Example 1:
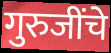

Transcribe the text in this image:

गुरुजींचे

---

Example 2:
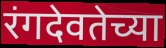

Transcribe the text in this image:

रंगदेवतेच्या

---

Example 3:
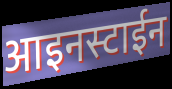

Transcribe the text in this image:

आइनस्टाईन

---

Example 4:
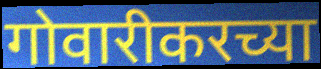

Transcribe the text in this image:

गोवारीकरच्या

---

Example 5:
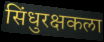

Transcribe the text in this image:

सिंधुरक्षकला